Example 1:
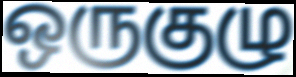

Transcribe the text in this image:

ஒருகுழு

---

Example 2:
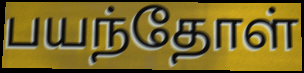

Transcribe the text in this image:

பயந்தோள்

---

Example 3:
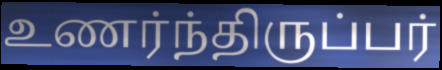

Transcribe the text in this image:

உணர்ந்திருப்பர்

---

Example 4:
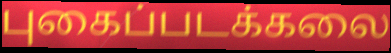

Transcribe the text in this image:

புகைப்படக்கலை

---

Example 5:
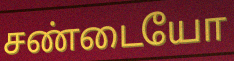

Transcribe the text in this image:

சண்டையோ